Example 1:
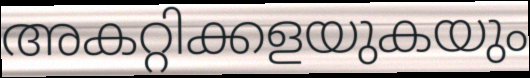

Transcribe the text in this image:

അകറ്റിക്കളയുകയും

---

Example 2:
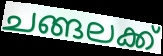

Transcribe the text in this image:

ചങ്ങലക്ക്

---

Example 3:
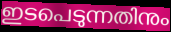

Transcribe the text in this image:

ഇടപെടുന്നതിനും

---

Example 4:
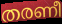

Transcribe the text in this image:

തരണീ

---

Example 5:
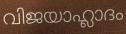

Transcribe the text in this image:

വിജയാഹ്ലാദം